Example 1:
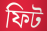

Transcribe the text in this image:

ফিট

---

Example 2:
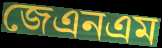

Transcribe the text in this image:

জেএনএম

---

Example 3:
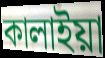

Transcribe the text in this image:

কালাইয়া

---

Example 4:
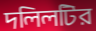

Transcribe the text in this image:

দলিলটির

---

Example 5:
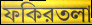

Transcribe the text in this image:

ফকিরতলা